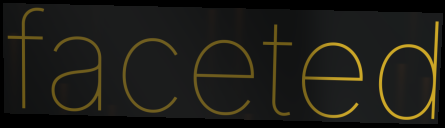
faceted